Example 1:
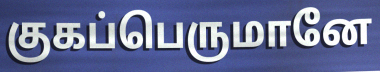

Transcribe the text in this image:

குகப்பெருமானே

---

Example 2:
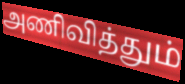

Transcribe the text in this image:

அணிவித்தும்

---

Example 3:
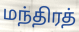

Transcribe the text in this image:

மந்திரத்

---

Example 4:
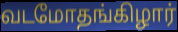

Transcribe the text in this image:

வடமோதங்கிழார்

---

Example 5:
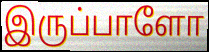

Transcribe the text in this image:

இருப்பாளோ